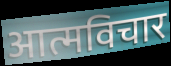
आत्मविचार